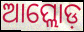
ଆପ୍ଲୋଡ଼